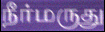
நீர்மருது